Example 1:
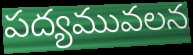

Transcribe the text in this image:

పద్యమువలన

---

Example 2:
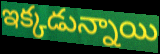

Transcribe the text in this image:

ఇక్కడున్నాయి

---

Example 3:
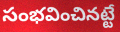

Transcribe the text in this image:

సంభవించినట్టే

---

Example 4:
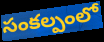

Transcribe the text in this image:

సంకల్పంలో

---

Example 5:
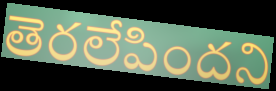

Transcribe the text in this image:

తెరలేపిందని